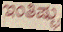
ಇಂತಿಷ್ಟು